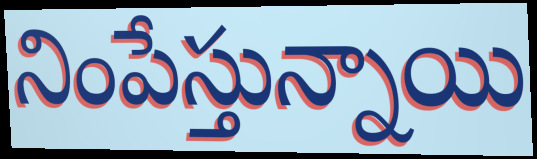
నింపేస్తున్నాయి